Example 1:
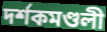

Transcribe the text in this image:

দর্শকমণ্ডলী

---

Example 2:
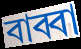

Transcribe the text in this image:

বাব্বা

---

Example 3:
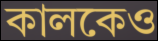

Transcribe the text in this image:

কালকেও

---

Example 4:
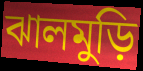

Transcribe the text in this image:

ঝালমুড়ি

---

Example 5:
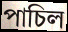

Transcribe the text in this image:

পাচিল